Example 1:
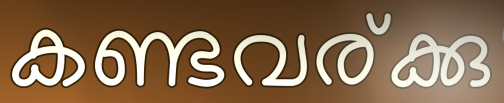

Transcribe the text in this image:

കണ്ടവര്ക്കു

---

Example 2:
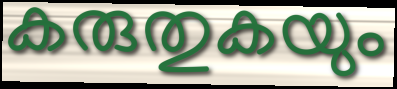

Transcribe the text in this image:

കരുതുകയും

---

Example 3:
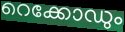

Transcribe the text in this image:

റെക്കോഡും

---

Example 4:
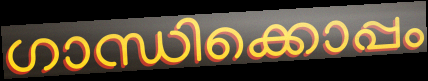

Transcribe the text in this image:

ഗാന്ധിക്കൊപ്പം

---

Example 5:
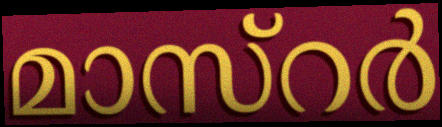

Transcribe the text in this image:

മാസ്റർ